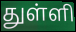
துள்ளி